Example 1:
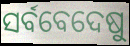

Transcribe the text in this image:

ସର୍ବବେଦେଷୁ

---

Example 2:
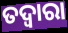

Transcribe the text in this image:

ତଦ୍ବାରା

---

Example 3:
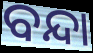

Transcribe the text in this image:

ବନ୍ଦା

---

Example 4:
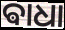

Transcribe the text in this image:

ଵାଧା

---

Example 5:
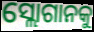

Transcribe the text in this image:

ସ୍ଲୋଗାନକୁ